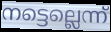
നട്ടെല്ലെന്ന്